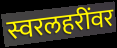
स्वरलहरींवर